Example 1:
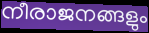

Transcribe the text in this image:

നീരാജനങ്ങളും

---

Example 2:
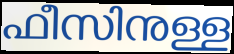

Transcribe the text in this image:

ഫീസിനുള്ള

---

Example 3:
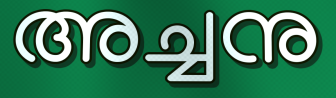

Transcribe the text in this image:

അച്ചനു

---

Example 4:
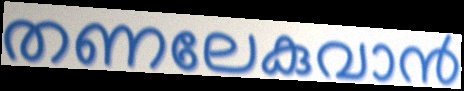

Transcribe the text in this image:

തണലേകുവാൻ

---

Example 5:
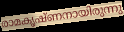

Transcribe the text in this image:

രാമകൃഷ്ണനായിരുന്നു